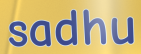
sadhu